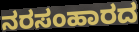
ನರಸಂಹಾರದ